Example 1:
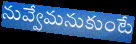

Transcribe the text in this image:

నువ్వేమనుకుంటే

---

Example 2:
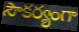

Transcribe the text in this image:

సౌకర్యంగా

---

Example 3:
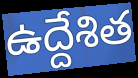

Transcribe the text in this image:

ఉద్దేశిత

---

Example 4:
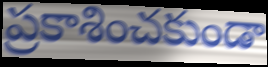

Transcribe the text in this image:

ప్రకాశించకుండా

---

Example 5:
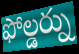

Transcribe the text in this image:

ఫోల్డర్ను